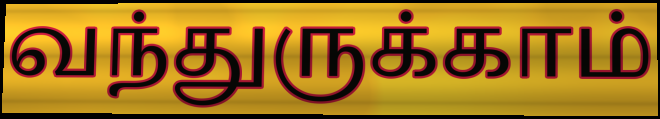
வந்துருக்காம்